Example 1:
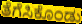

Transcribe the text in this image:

ತೆಗೆಸಿಕೊಂಡು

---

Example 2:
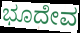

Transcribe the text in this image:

ಭೂದೇವ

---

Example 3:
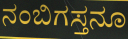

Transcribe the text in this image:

ನಂಬಿಗಸ್ತನೂ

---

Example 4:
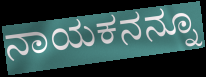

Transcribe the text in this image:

ನಾಯಕನನ್ನೂ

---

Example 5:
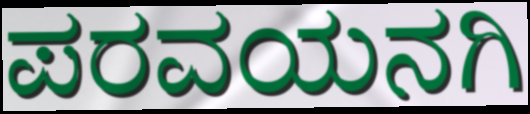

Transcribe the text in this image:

ಪರವಯನಗಿ